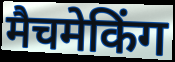
मैचमेकिंग